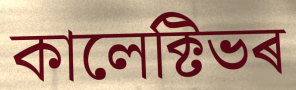
কালেক্টিভৰ